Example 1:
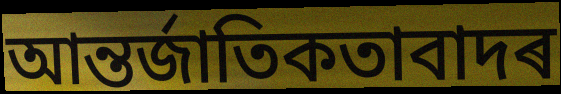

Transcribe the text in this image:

আন্তৰ্জাতিকতাবাদৰ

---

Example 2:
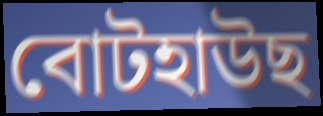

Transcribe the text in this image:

বোটহাউছ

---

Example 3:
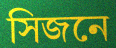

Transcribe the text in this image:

সিজনে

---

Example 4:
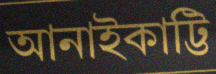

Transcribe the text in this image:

আনাইকাট্টি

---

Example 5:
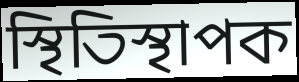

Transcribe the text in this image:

স্থিতিস্থাপক